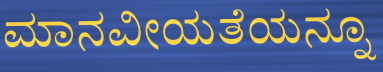
ಮಾನವೀಯತೆಯನ್ನೂ